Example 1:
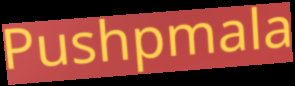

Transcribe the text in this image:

Pushpmala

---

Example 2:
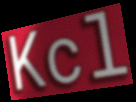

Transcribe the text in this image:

Kcl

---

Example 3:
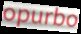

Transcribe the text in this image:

opurbo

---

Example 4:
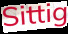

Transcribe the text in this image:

Sittig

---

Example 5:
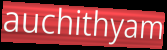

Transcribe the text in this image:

auchithyam